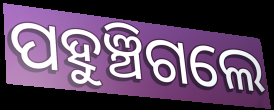
ପହୁଞ୍ଚିଗଲେ